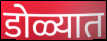
डोळ्यात